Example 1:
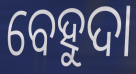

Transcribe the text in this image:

ବେହୁଦା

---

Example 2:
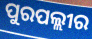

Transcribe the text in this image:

ପୁରପଲ୍ଲୀର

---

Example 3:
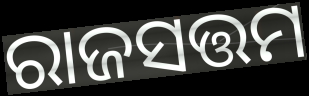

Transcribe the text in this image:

ରାଜସତ୍ତମ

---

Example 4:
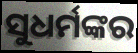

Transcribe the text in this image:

ସୁଧର୍ମଙ୍କର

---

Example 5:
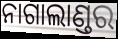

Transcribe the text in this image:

ନାଗାଲାଣ୍ଡର